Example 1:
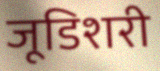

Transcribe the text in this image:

जूडिशरी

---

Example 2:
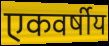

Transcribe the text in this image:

एकवर्षीय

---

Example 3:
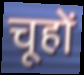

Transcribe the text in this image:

चूहों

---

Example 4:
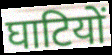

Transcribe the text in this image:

घाटियों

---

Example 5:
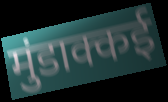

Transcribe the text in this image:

मुंडाक्कई